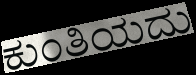
ಕುಂತಿಯದು